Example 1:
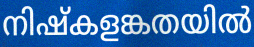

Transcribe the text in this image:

നിഷ്കളങ്കതയിൽ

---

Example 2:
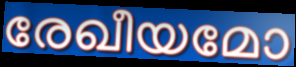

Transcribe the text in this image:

രേഖീയമോ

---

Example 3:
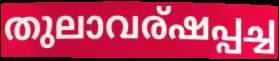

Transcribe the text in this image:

തുലാവര്ഷപ്പച്ച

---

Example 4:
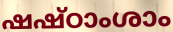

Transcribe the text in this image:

ഷഷ്ഠാംശാം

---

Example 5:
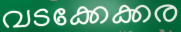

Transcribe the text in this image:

വടക്കേക്കര